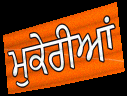
ਮੁਕੇਰੀਆਂ